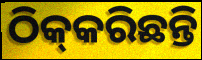
ଠିକ୍‌କରିଛନ୍ତି